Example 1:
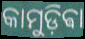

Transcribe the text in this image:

କାମୁଡ଼ିଵା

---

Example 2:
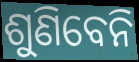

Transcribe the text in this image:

ଶୁଣିବେନି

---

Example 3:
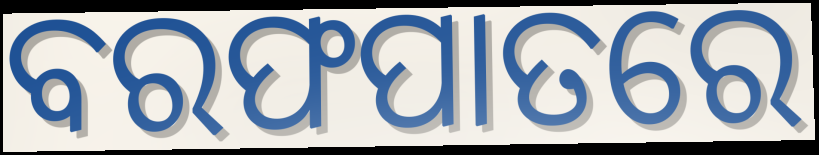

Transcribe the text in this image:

ବରଫପାତରେ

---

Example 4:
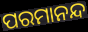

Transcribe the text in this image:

ପରମାନନ୍ଦ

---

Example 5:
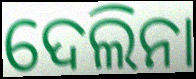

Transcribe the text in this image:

ଦେଲିନା